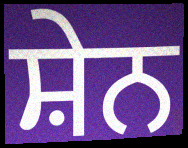
ਸ਼ੇਨ